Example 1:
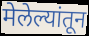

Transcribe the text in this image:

मेलेल्यांतून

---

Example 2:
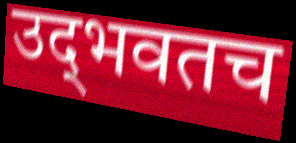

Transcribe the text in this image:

उद्‌भवतच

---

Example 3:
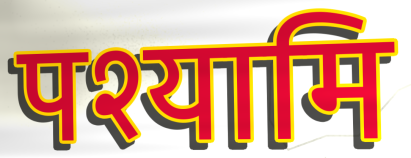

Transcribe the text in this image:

पश्यामि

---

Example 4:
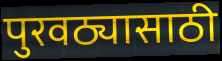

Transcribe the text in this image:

पुरवठ्यासाठी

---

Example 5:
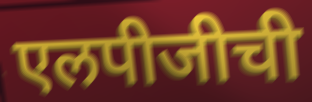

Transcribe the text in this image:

एलपीजीची